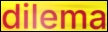
dilema